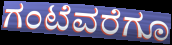
ಗಂಟೆವರೆಗೂ